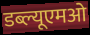
डब्ल्यूएमओ